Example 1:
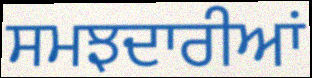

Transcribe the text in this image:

ਸਮਝਦਾਰੀਆਂ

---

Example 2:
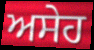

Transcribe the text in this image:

ਅਸੇਹ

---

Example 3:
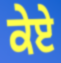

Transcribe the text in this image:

ਕੇਏ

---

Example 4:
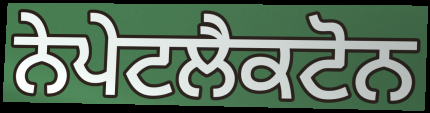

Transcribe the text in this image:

ਨੇਪੇਟਲੈਕਟੋਨ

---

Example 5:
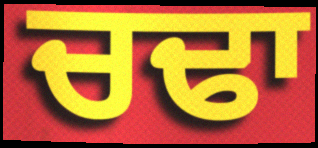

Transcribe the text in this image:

ਚਢਾ